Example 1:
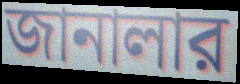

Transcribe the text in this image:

জানালার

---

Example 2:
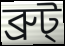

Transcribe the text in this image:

ব্রুট্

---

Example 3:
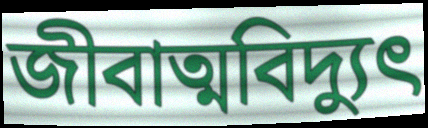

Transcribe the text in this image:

জীবাত্মবিদ্যুৎ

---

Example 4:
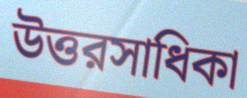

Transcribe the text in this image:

উত্তরসাধিকা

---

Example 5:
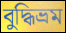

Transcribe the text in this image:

বুদ্ধিভ্রম